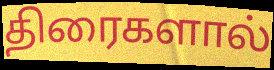
திரைகளால்